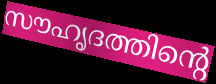
സൗഹൃദത്തിന്റെ